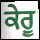
ਕੇਰੂ